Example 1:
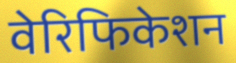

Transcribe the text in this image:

वेरिफिकेशन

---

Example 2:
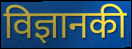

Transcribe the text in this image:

विज्ञानकी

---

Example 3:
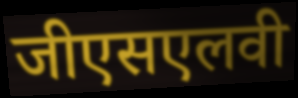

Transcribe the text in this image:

जीएसएलवी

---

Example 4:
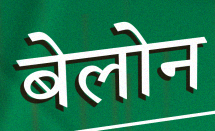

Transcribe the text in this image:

बेलोन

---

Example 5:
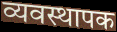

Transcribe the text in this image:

व्यवस्थापक